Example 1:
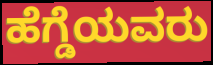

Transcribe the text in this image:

ಹೆಗ್ಡೆಯವರು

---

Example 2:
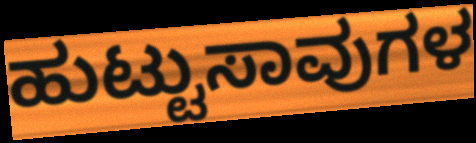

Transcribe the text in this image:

ಹುಟ್ಟುಸಾವುಗಳ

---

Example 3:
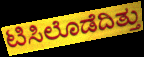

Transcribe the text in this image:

ಟಿಸಿಲೊಡೆದಿತ್ತು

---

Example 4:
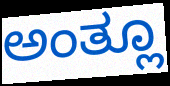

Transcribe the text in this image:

ಅಂತ್ಲೂ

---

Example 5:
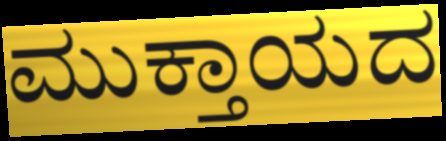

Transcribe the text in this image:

ಮುಕ್ತಾಯದ